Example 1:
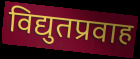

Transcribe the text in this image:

विद्युतप्रवाह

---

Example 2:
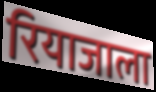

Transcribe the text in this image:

रियाजाला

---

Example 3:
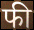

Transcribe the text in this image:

फी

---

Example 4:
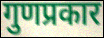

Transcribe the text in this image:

गुणप्रकार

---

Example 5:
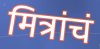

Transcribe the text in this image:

मित्रांचं